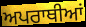
ਅਪਰਾਥੀਆਂ